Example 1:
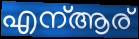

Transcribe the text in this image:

എന്ആര്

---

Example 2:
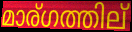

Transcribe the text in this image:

മാര്ഗത്തില്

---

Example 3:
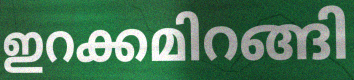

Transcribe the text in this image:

ഇറക്കമിറങ്ങി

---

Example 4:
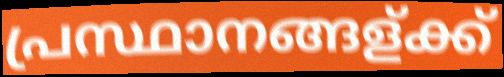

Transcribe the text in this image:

പ്രസ്ഥാനങ്ങള്ക്ക്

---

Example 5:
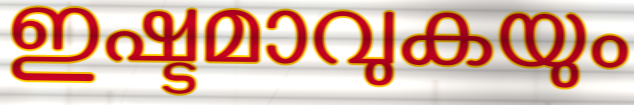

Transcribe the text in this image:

ഇഷ്ടമാവുകയും